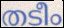
തടീം